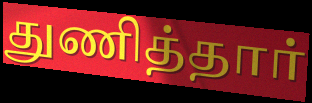
துணித்தார்